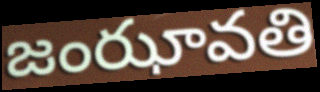
జంఝావతి